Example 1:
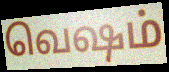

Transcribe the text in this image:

வெஷம்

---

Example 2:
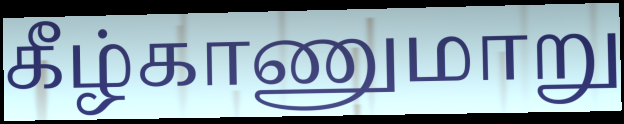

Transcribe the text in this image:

கீழ்காணுமாறு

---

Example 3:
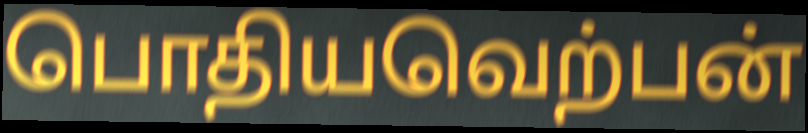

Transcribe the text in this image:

பொதியவெற்பன்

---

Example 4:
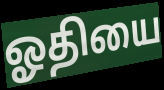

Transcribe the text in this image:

ஓதியை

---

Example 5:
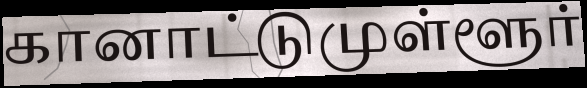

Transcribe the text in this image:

கானாட்டுமுள்ளூர்